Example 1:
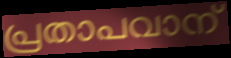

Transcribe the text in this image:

പ്രതാപവാന്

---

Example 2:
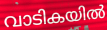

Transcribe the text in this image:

വാടികയിൽ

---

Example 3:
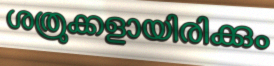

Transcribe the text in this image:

ശത്രുക്കളായിരിക്കും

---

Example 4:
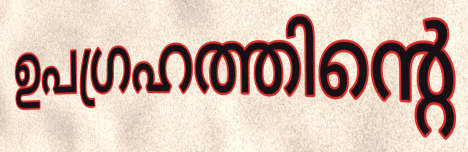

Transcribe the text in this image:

ഉപഗ്രഹത്തിന്റെ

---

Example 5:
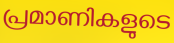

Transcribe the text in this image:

പ്രമാണികളുടെ